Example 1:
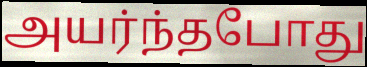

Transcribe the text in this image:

அயர்ந்தபோது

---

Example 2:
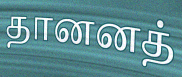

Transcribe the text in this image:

தானனத்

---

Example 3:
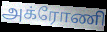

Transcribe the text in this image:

அக்ரோணி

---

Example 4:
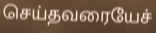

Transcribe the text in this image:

செய்தவரையேச்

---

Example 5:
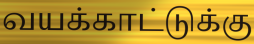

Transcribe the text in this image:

வயக்காட்டுக்கு